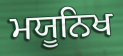
ਮਯੂਨਿਖ